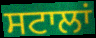
ਸਟਾਲਾਂ